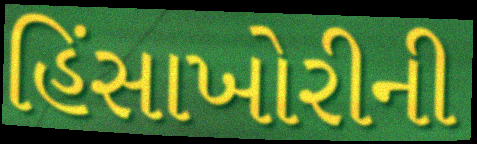
હિંસાખોરીની